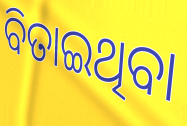
ବିତାଇଥିବା